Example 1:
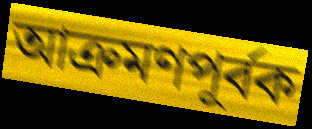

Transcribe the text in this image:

আক্রমণপূর্বক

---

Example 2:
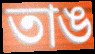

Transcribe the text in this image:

তাঙ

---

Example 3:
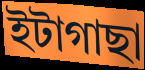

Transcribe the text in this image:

ইটাগাছা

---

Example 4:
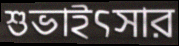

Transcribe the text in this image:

শুভাইৎসার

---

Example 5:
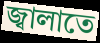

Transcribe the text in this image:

জ্বালাতে